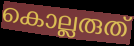
കൊല്ലരുത്